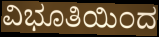
ವಿಭೂತಿಯಿಂದ